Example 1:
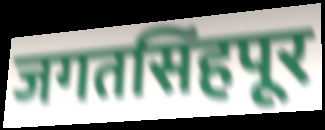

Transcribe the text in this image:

जगतसिंहपूर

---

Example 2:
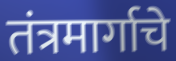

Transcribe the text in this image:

तंत्रमार्गाचे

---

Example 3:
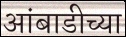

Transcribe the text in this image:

आंबाडीच्या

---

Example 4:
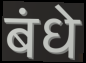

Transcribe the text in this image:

बंधे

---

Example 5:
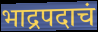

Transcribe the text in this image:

भाद्रपदाचं